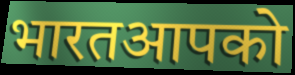
भारतआपको